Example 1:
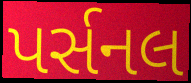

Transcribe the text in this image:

પર્સનલ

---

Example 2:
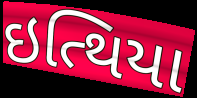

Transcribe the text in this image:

ઇત્થિયા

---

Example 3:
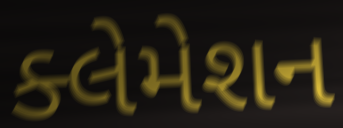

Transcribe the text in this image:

ક્લેમેશન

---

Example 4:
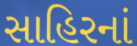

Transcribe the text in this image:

સાહિરનાં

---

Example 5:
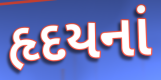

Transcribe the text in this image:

હૃદયનાં